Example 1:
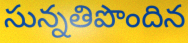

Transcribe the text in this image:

సున్నతిపొందిన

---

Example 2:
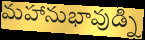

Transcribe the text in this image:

మహానుభావుడ్ని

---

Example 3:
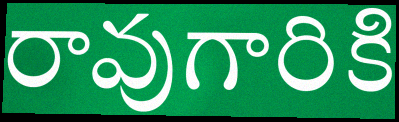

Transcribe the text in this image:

రావుగారికి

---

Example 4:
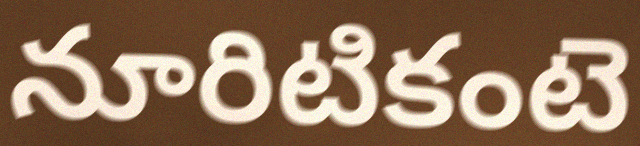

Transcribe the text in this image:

నూరిటికంటె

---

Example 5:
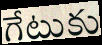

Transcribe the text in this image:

గేటుకు